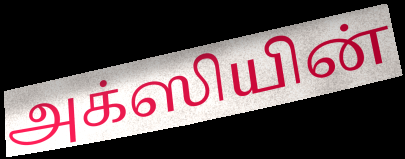
அக்ஸியின்